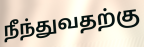
நீந்துவதற்கு